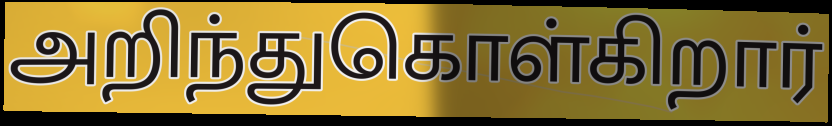
அறிந்துகொள்கிறார்